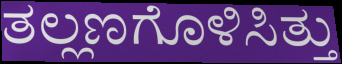
ತಲ್ಲಣಗೊಳಿಸಿತ್ತು